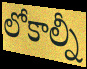
లోకాల్నీ